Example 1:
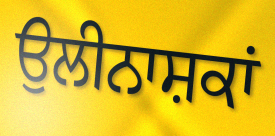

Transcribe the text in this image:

ਉਲੀਨਾਸ਼ਕਾਂ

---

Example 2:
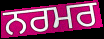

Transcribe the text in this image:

ਨਰਮਰ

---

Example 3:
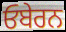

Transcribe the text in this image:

ਓਬੇਰਨ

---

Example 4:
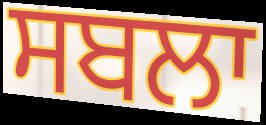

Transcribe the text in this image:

ਸਬਲਾ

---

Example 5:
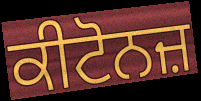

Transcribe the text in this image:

ਕੀਟੋਨਜ਼